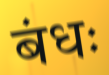
बंधः